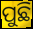
ପୁଛି